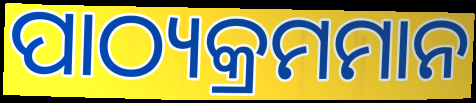
ପାଠ୍ୟକ୍ରମମାନ